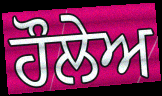
ਹੌਲੇਅ